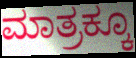
ಮಾತ್ರಕ್ಕೂ